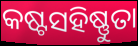
କଷ୍ଟସହିଷ୍ଣୁତା